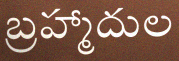
బ్రహ్మాదుల